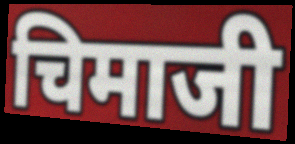
चिमाजी